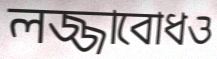
লজ্জাবোধও